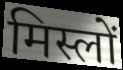
मिस्लों